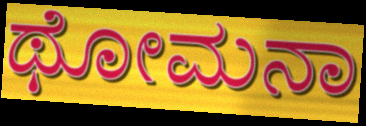
ಥೋಮನಾ